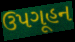
ઉપગૂહન